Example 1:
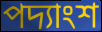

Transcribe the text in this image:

পদ্যাংশ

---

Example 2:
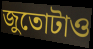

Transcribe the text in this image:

জুতোটাও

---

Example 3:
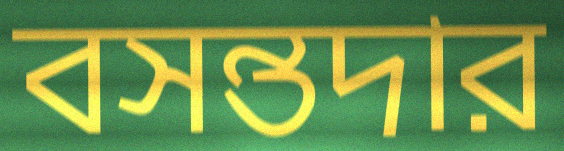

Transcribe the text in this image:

বসন্তদার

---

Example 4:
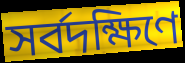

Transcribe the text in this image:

সর্বদক্ষিণে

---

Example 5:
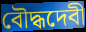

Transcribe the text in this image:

বৌদ্ধদেবী